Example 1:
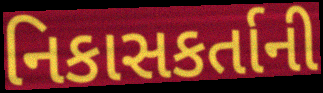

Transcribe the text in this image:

નિકાસકર્તાની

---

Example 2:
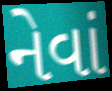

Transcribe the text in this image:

નેવાં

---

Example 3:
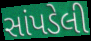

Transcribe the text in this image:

સાંપડેલી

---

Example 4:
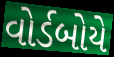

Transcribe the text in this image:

વોર્ડબોયે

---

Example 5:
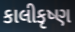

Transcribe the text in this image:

કાલીકૃષ્ણ